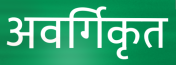
अवर्गिकृत